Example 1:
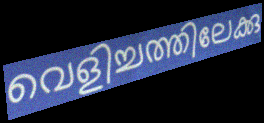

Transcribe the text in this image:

വെളിച്ചത്തിലേക്കു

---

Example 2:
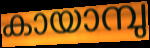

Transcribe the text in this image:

കായാമ്പു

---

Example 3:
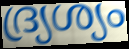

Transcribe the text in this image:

ദ്ര്യശ്യം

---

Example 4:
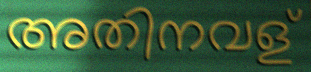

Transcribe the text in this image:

അതിനവള്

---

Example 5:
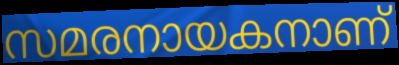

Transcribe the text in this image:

സമരനായകനാണ്